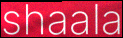
shaala